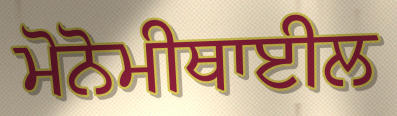
ਮੋਨੋਮੀਥਾਈਲ